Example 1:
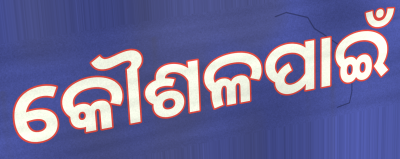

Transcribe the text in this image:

କୌଶଳପାଇଁ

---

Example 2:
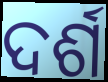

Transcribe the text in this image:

ଦର୍ଶ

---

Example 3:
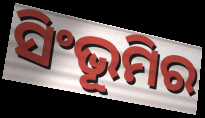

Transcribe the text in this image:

ସିଂଭୂମିର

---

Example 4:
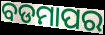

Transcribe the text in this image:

ବଡମାପର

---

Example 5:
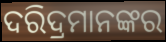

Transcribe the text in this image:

ଦରିଦ୍ରମାନଙ୍କର